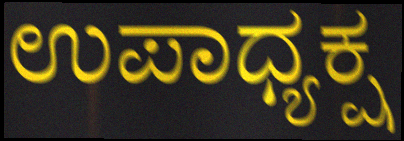
ಉಪಾಧ್ಯಕ್ಷ